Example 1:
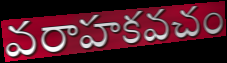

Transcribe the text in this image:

వరాహకవచం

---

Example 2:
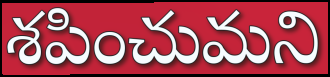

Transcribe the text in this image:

శపించుమని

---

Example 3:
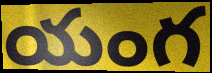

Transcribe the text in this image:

యంగ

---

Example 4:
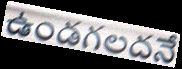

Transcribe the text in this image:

ఉండగలదనే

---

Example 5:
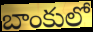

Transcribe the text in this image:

బాంకులో